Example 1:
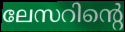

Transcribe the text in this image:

ലേസറിന്റെ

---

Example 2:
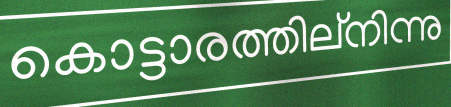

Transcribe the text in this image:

കൊട്ടാരത്തില്നിന്നു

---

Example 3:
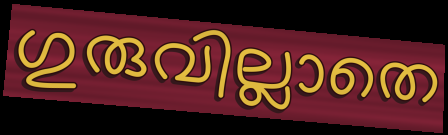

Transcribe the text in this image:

ഗുരുവില്ലാതെ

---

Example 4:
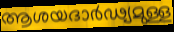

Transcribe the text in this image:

ആശയദാർഢ്യമുള്ള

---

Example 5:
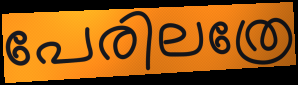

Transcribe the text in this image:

പേരിലത്രേ